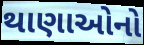
થાણાઓનો